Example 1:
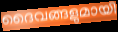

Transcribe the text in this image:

ദൈവങ്ങളുമായി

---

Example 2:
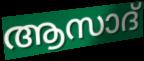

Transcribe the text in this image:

ആസാദ്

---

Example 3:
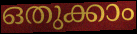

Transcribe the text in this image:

ഒതുക്കാം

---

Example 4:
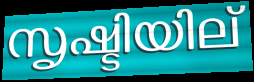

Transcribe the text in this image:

സൃഷ്ടിയില്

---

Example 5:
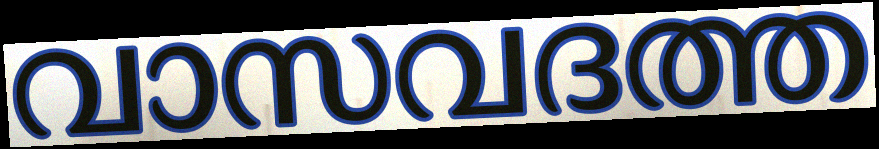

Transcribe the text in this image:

വാസവദത്ത